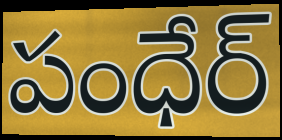
పంధేర్